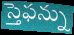
స్తెఫన్ను